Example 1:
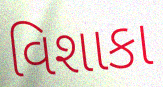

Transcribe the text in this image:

વિશાકા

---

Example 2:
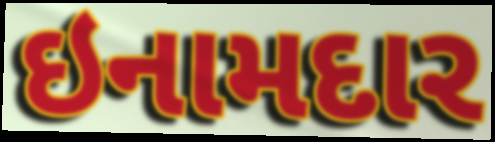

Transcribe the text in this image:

ઇનામદાર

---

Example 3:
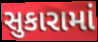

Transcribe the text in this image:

સુકારામાં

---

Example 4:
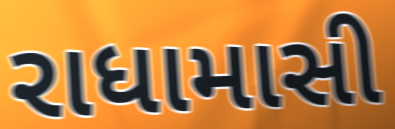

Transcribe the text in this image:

રાધામાસી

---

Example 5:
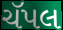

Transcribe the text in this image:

ચૅપલ